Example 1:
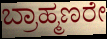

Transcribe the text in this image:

ಬ್ರಾಹ್ಮಣರೇ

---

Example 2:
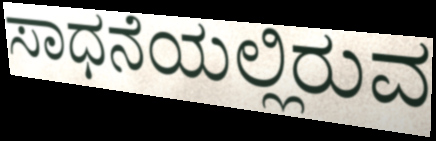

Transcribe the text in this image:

ಸಾಧನೆಯಲ್ಲಿರುವ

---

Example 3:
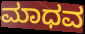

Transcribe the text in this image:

ಮಾಧವ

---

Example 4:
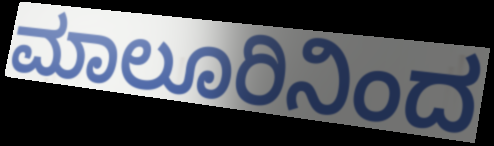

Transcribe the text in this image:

ಮಾಲೂರಿನಿಂದ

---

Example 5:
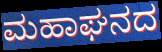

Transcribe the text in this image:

ಮಹಾಘನದ